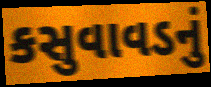
કસુવાવડનું